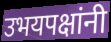
उभयपक्षांनी